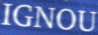
IGNOU